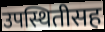
उपस्थितीसह